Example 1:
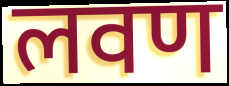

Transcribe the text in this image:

लवण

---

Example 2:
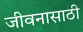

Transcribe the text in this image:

जीवनासाठी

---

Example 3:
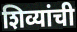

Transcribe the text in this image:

शिव्यांची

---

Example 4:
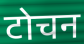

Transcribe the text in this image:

टोचन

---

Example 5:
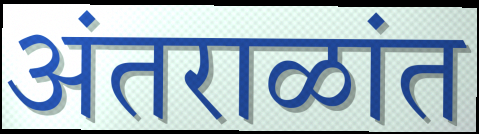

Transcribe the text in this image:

अंतराळांत